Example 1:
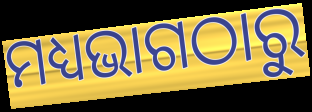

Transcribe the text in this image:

ମଧ୍ୟଭାଗଠାରୁ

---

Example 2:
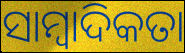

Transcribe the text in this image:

ସାମ୍ୱାଦିକତା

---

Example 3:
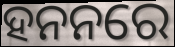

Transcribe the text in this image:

ହନନରେ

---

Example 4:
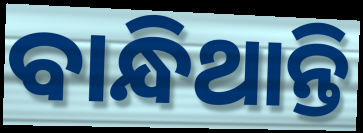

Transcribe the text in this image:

ବାନ୍ଧିଥାନ୍ତି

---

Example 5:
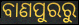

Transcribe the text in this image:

ବାଣପୁରରୁ